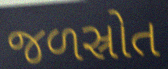
જળસ્રોત